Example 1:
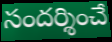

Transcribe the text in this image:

సందర్శించే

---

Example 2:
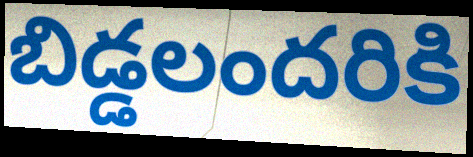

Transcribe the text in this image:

బిడ్డలందరికి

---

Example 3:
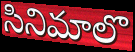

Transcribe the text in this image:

సినిమాలొ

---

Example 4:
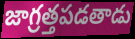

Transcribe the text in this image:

జాగ్రత్తపడతాడు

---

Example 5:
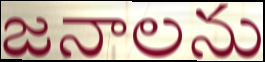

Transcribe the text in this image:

జనాలను